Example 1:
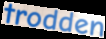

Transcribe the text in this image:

trodden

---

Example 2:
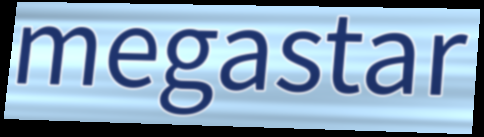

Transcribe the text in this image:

megastar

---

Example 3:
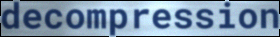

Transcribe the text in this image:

decompression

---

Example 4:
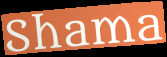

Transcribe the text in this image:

Shama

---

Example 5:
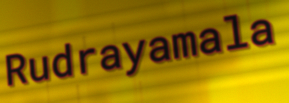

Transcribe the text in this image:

Rudrayamala